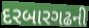
દરબારગઢની